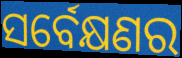
ସର୍ବେକ୍ଷଣର